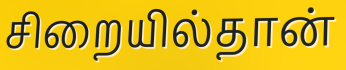
சிறையில்தான்